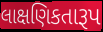
લાક્ષણિકતારૂપ